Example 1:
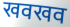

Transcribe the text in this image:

खवखव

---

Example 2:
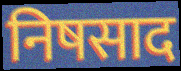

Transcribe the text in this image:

निषसाद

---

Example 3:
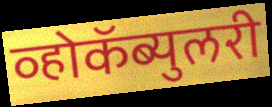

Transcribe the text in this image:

व्होकॅब्युलरी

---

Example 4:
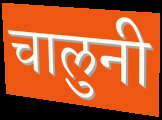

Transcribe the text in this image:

चालुनी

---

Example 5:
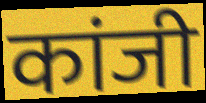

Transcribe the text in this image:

कांजी